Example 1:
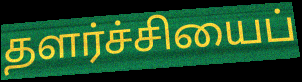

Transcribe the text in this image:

தளர்ச்சியைப்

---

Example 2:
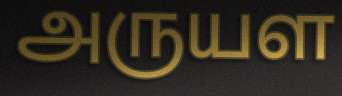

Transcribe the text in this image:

அருயள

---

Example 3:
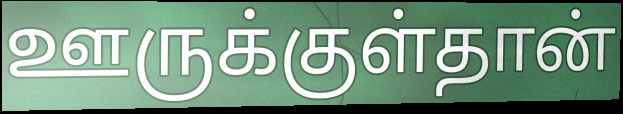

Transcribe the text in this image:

ஊருக்குள்தான்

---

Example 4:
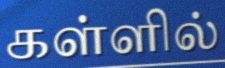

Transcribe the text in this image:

கள்ளில்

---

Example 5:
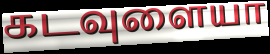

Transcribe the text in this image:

கடவுளையா